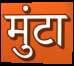
मुंटा